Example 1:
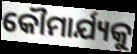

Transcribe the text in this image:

କୌମାର୍ଯ୍ୟକୁ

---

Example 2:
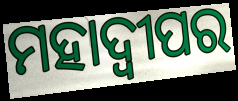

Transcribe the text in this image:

ମହାଦ୍ୱୀପର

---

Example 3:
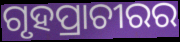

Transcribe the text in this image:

ଗୃହପ୍ରାଚୀରର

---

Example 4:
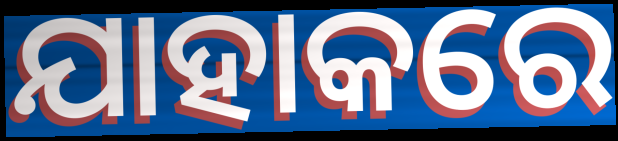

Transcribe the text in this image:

ଯାହାକରେ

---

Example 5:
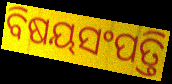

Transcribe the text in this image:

ବିଷୟସଂପତ୍ତି